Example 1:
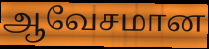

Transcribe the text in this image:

ஆவேசமான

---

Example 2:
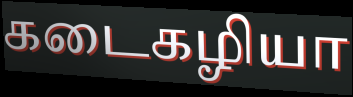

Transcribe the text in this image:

கடைகழியா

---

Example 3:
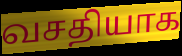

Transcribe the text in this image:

வசதியாக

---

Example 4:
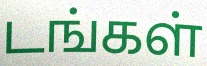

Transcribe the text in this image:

டங்கள்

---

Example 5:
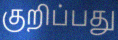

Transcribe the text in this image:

குறிப்பது